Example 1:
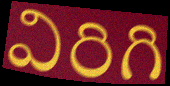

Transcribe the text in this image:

విరిగి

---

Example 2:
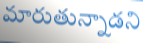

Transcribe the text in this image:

మారుతున్నాడని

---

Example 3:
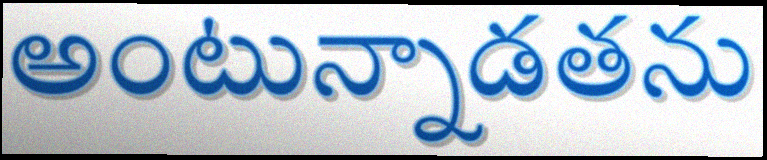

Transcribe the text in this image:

అంటున్నాడతను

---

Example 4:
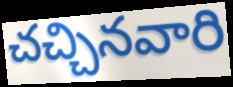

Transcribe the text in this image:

చచ్చినవారి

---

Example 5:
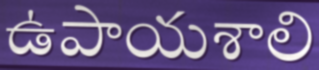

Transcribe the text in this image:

ఉపాయశాలి